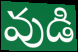
వుడి